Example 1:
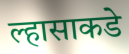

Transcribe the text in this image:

ल्हासाकडे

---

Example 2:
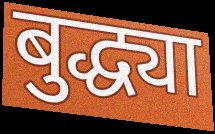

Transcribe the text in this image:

बुद्ध्या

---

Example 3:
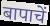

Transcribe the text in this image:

बापाचें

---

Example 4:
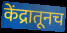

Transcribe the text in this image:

केंद्रातूनच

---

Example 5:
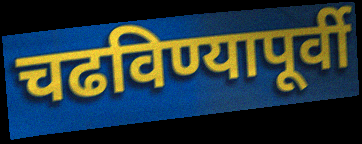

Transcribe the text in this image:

चढविण्यापूर्वी